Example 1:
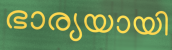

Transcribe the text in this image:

ഭാര്യയായി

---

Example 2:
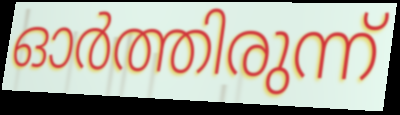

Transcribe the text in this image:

ഓർത്തിരുന്ന്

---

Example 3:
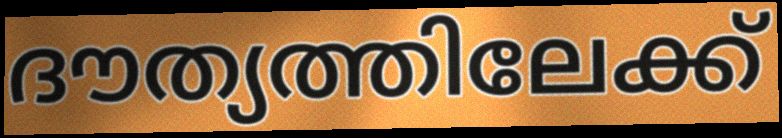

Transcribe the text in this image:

ദൗത്യത്തിലേക്ക്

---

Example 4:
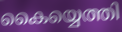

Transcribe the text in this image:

കൈയ്യെത്തി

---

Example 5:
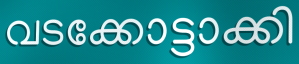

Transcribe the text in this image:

വടക്കോട്ടാക്കി